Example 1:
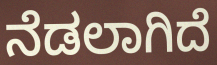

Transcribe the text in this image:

ನೆಡಲಾಗಿದೆ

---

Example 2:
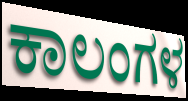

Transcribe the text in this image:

ಕಾಲಂಗಳ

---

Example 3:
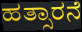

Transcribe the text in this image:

ಹತ್ಸಾರನೆ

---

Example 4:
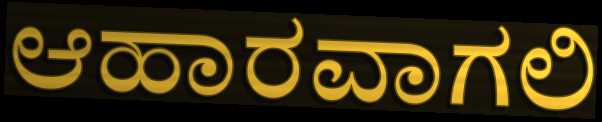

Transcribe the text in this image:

ಆಹಾರವಾಗಲಿ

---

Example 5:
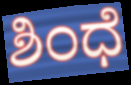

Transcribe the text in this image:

ಶಿಂಧೆ